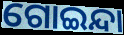
ଗୋଇନ୍ଦା